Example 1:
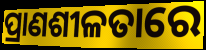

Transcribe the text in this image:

ପ୍ରାଣଶୀଳତାରେ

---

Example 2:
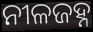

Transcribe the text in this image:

ନୀଳଜହ୍ନ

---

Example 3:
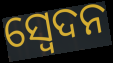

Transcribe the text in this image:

ସ୍ଵେଦନ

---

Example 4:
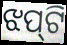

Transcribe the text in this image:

ଝପ୍‌ଟି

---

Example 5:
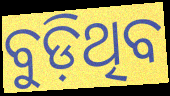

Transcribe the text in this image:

ବୁଡ଼ିଥିବ